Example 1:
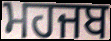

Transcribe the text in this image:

ਮਹਜਬ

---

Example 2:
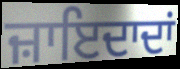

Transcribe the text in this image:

ਜ਼ਾਇਦਾਦਾਂ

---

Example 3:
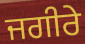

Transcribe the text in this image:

ਜਗੀਰੇ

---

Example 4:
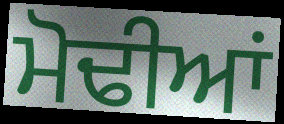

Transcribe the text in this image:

ਮੋਢੀਆਂ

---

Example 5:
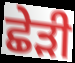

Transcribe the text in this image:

ਛੇੜੀ